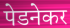
पेडनेकर